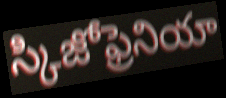
స్కిజోఫ్రెనియా